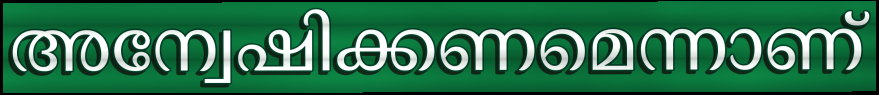
അന്വേഷിക്കണമെന്നാണ്